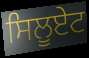
ਸਿਲੂਏਟ